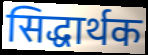
सिद्धार्थक